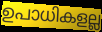
ഉപാധികളല്ല